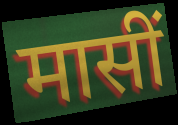
मासीं